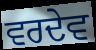
ਵਰਦੇਵ